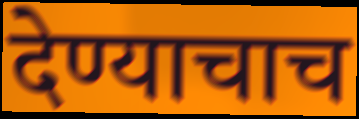
देण्याचाच